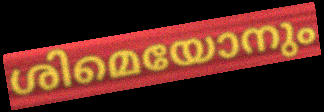
ശിമെയോനും